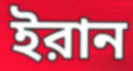
ইরান